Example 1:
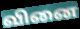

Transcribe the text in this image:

வினை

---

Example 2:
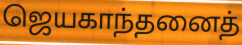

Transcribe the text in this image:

ஜெயகாந்தனைத்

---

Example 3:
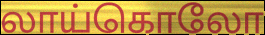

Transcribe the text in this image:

லாய்கொலோ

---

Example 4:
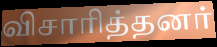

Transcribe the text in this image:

விசாரித்தனர்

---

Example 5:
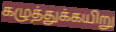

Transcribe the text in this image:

கழுத்துக்கயிறு